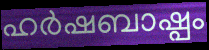
ഹർഷബാഷ്പം